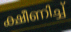
ക്ഷീണിച്ച്